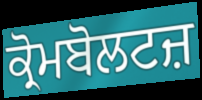
ਕ੍ਰੋਮਬੋਲਟਜ਼